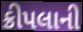
ક્રીપલાની